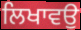
ਲਿਖਾਵਉ